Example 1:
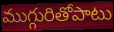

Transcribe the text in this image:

ముగ్గురితోపాటు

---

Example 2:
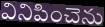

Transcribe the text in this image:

వినిపించెను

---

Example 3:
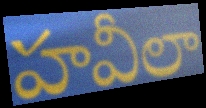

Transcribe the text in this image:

హవీలా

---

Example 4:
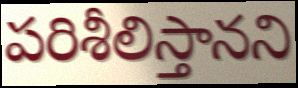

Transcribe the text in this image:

పరిశీలిస్తానని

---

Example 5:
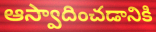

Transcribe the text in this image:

ఆస్వాదించడానికి